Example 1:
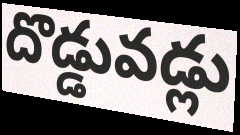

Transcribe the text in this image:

దొడ్డువడ్లు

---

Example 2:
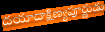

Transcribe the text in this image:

దయాదాక్షిణ్యపూర్ణుడు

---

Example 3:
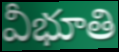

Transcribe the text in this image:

వీభూతి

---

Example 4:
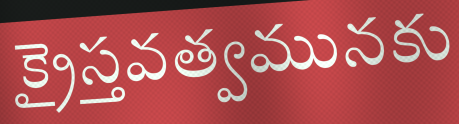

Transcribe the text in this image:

క్రైస్తవత్వమునకు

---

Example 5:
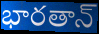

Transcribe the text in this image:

భారతాన్